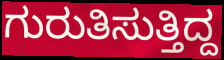
ಗುರುತಿಸುತ್ತಿದ್ದ